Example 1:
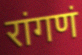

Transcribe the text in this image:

रांगणं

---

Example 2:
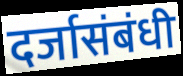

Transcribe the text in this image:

दर्जासंबंधी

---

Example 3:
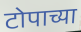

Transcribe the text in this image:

टोपाच्या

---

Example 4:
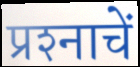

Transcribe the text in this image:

प्रश्नाचें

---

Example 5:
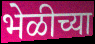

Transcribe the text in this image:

भेळीच्या